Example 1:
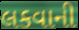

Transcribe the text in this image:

લકવાની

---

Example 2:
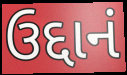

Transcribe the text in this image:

ઉદ્દાનં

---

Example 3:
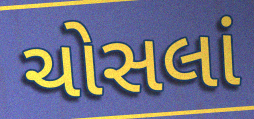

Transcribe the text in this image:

ચોસલાં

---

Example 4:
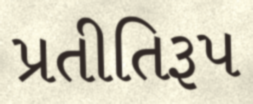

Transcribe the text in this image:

પ્રતીતિરૂપ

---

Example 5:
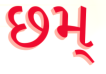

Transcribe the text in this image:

છમ્